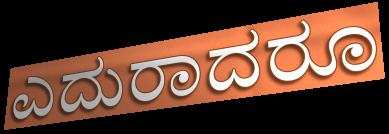
ಎದುರಾದರೂ